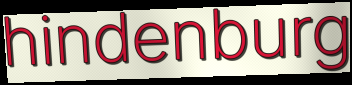
hindenburg